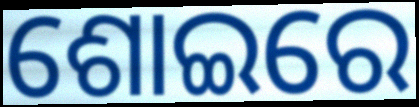
ଶୋଇରେ